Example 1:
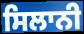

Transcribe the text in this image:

ਸਿਲਾਨੀ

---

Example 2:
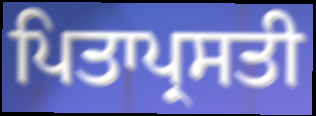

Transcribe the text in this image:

ਪਿਤਾਪ੍ਰਸਤੀ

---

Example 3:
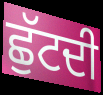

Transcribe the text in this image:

ਛੁੱਟਦੀ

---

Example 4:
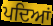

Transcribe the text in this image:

ਪਦਿਆਂ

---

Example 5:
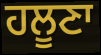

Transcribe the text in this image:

ਹਲੂਣਾ